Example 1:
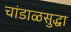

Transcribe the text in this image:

चांडाळसुद्धा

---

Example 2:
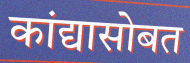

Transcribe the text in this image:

कांद्यासोबत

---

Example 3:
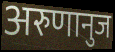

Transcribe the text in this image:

अरुणानुज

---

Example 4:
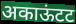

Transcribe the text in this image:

अकाऊंटट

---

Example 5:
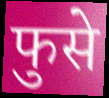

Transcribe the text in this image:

फुसे